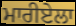
ਮਾਰੀਏਲਾ